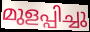
മുളപ്പിച്ചു